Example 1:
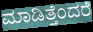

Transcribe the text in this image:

ಮಾಡಿತ್ತೆಂದರೆ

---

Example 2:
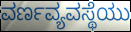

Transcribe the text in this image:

ವರ್ಣವ್ಯವಸ್ಥೆಯು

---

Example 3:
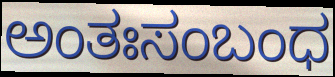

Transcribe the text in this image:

ಅಂತಃಸಂಬಂಧ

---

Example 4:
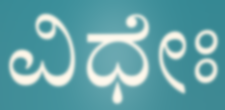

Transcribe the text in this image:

ವಿಧೇಃ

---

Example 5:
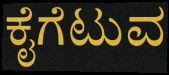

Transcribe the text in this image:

ಕೈಗೆಟುವ